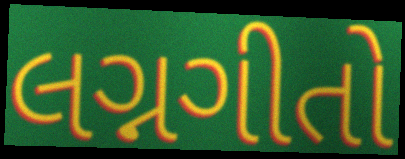
લગ્નગીતો